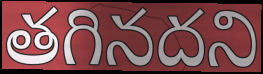
తగినదని